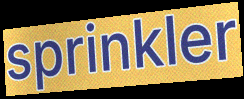
sprinkler